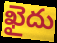
ఖైదు